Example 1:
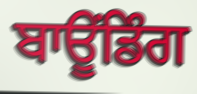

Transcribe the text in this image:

ਬਾਊਂਡਿੰਗ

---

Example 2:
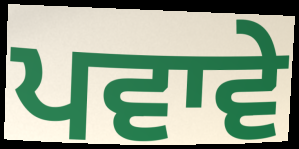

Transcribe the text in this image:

ਪਵਾਵੇ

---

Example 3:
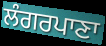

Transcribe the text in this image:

ਲੰਗਰਪਾਣਾ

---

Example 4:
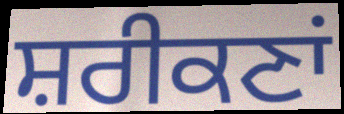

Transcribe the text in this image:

ਸ਼ਰੀਕਣਾਂ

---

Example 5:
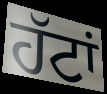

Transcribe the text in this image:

ਹੱਟਾਂ